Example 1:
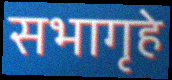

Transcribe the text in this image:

सभागृहे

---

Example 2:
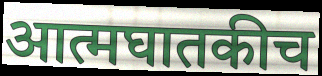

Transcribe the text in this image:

आत्मघातकीच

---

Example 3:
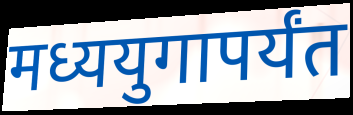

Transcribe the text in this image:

मध्ययुगापर्यंत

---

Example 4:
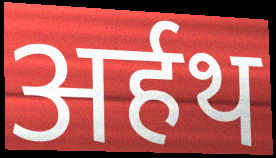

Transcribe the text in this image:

अर्हथ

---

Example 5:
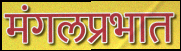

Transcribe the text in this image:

मंगलप्रभात